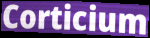
Corticium